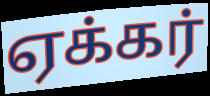
ஏக்கர்